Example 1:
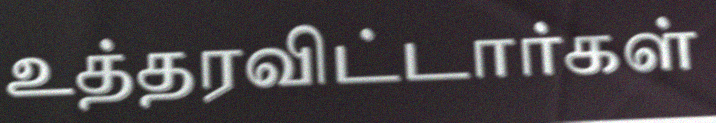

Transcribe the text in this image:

உத்தரவிட்டார்கள்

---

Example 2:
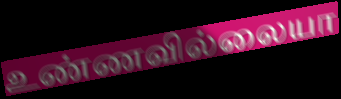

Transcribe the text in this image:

உண்ணவில்லையா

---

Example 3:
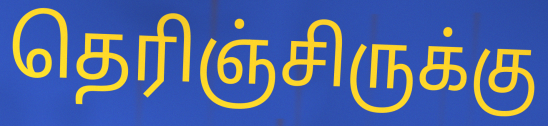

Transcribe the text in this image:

தெரிஞ்சிருக்கு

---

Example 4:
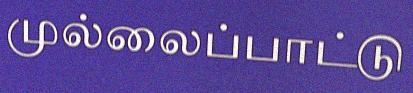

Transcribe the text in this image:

முல்லைப்பாட்டு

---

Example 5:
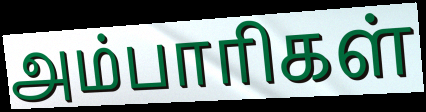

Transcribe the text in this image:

அம்பாரிகள்